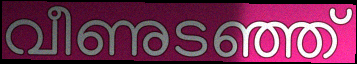
വീണുടഞ്ഞ്